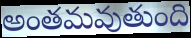
అంతమవుతుంది